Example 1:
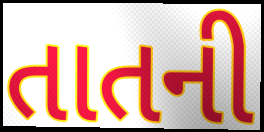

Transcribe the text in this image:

તાતની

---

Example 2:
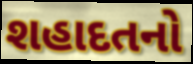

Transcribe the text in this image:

શહાદતનો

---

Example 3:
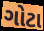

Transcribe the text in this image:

ગોટા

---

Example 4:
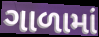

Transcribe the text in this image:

ગાળામાં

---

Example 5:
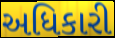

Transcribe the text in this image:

અધિકારી